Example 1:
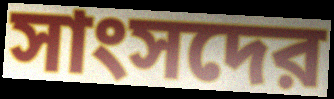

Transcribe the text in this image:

সাংসদের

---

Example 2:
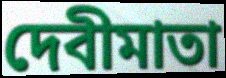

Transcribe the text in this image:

দেবীমাতা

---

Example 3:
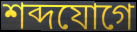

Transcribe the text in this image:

শব্দযোগে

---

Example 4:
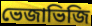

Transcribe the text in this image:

ভেজাভিজি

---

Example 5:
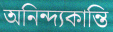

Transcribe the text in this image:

অনিন্দ্যকান্তি